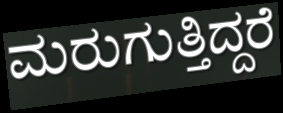
ಮರುಗುತ್ತಿದ್ದರೆ